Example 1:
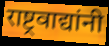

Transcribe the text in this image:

राष्ट्रवाद्यांनी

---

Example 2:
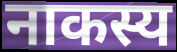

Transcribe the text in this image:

नाकस्य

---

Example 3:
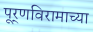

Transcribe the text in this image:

पूर्णविरामाच्या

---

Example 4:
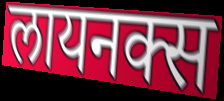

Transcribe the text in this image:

लायनक्स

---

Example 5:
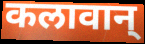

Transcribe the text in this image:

कलावान्